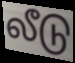
லீடு